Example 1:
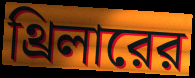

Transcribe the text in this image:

থ্রিলারের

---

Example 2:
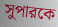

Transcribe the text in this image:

সুপারকে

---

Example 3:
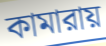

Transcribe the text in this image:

কামারায়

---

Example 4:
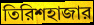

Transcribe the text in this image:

তিরিশহাজার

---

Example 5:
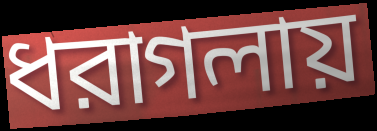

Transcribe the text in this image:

ধরাগলায়